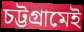
চট্টগ্রামেই